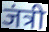
जंत्री